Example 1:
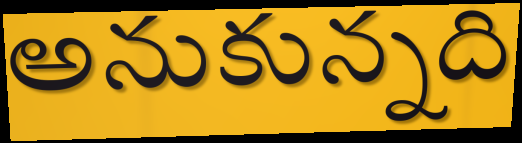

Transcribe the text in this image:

అనుకున్నది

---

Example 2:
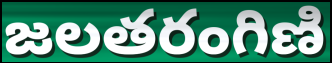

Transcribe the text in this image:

జలతరంగిణి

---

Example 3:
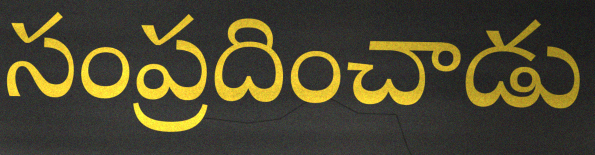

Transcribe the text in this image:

సంప్రదించాడు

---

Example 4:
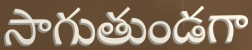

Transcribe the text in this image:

సాగుతుండగా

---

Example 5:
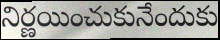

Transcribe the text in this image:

నిర్ణయించుకునేందుకు